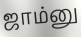
ஜாம்னு